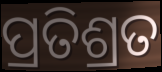
ପ୍ରତିଶ୍ରତ